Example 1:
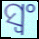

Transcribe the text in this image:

ସ୍ୱଂ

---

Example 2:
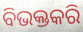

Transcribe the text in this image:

ବିଭକ୍ତକରି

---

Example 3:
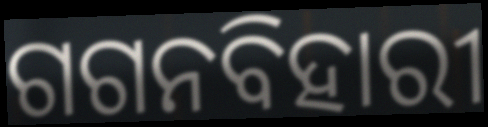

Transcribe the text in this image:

ଗଗନବିହାରୀ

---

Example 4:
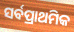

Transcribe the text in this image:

ସର୍ବପ୍ରାଥମିକ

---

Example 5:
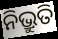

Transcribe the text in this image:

ନିଭ୍ରୁତି